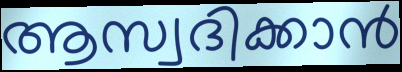
ആസ്വദിക്കാൻ